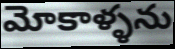
మోకాళ్ళను